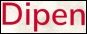
Dipen